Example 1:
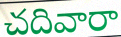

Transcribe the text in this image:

చదివారా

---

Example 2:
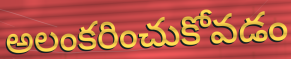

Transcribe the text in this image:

అలంకరించుకోవడం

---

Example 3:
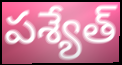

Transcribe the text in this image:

పశ్యేత్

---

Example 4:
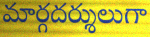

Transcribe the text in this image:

మార్గదర్శులుగా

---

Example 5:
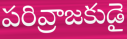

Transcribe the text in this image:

పరివ్రాజకుడై